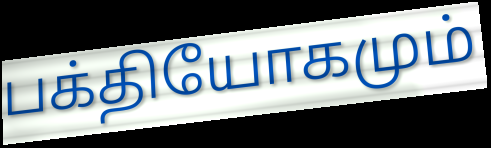
பக்தியோகமும்